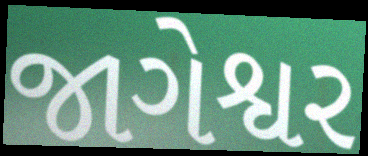
જાગેશ્વર